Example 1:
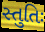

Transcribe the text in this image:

સ્તુતિઃ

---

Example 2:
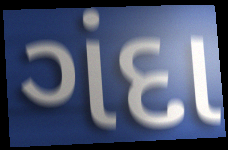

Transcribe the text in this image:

ગંદા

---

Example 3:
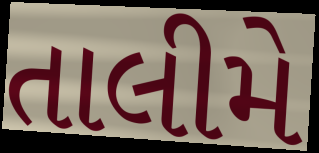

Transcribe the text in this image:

તાલીમે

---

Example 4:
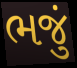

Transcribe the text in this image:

ભજું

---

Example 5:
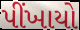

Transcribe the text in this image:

પીંખાયો